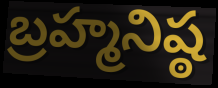
బ్రహ్మనిష్ఠ